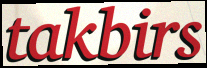
takbirs